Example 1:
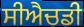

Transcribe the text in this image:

ਸੀਐਚਡੀ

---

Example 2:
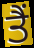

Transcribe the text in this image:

ਤੈਂ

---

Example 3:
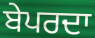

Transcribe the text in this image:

ਬੇਪਰਦਾ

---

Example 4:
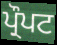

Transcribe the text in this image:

ਪ੍ਰੌਪਟ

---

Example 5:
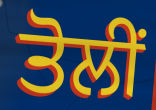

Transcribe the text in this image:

ਤੋਲੀਂ